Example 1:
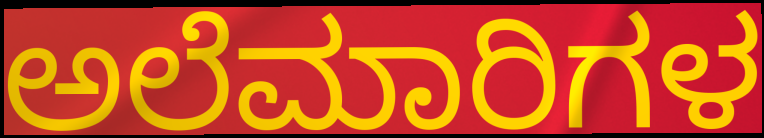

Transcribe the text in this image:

ಅಲೆಮಾರಿಗಳ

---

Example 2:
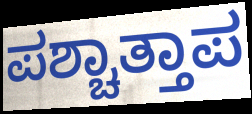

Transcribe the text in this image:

ಪಶ್ಚಾತ್ತಾಪ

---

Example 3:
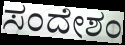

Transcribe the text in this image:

ಸಂದೇಶಂ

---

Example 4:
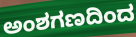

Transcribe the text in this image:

ಅಂಶಗಣದಿಂದ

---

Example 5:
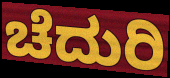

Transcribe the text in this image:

ಚೆದುರಿ